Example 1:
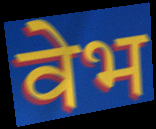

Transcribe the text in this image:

वेभ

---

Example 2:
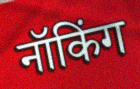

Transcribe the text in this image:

नॉकिंग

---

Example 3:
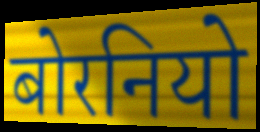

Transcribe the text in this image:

बोरनियो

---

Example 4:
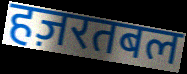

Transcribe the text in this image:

हज़रतबल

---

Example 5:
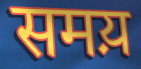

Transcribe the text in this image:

समय़